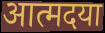
आत्मदया